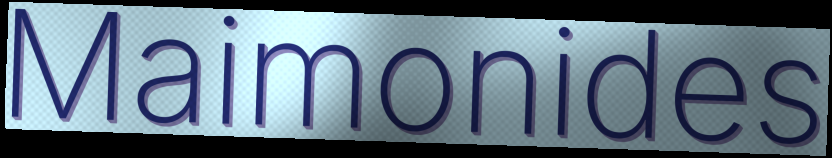
Maimonides